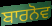
ਬਾਰਨੋਵ